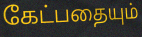
கேட்பதையும்